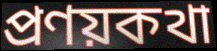
প্রণয়কথা